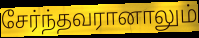
சேர்ந்தவரானாலும்